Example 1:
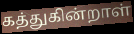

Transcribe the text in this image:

கத்துகின்றாள்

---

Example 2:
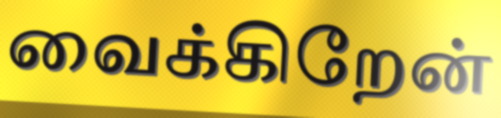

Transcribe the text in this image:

வைக்கிறேன்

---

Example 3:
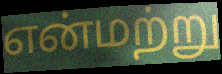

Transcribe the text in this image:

என்மற்று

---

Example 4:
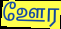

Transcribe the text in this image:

ஊேர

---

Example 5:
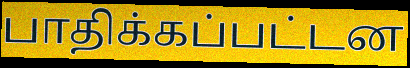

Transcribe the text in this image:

பாதிக்கப்பட்டன